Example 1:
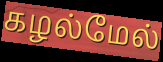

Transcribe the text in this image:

கழல்மேல்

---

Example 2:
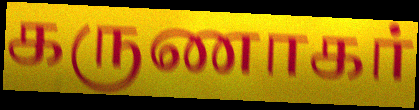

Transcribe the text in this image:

கருணாகர்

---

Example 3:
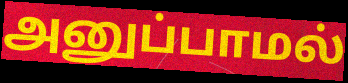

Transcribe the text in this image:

அனுப்பாமல்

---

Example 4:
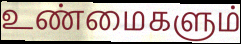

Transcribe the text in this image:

உண்மைகளும்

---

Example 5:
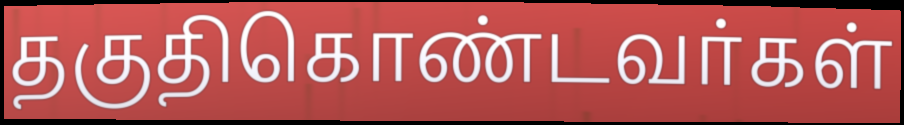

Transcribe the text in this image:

தகுதிகொண்டவர்கள்